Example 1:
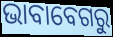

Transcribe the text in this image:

ଭାବାବେଗରୁ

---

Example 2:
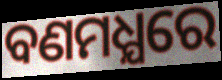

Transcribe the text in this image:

ବଣମଧ୍ଯରେ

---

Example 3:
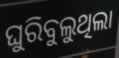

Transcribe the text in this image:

ଘୁରିବୁଲୁଥିଲା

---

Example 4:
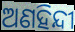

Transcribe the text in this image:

ଅଣହିନ୍ଦୀ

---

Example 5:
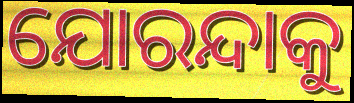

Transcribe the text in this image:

ଯୋରନ୍ଦାକୁ